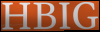
HBIG